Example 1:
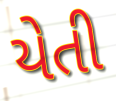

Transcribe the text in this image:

યેતી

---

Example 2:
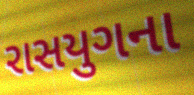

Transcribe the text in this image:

રાસયુગના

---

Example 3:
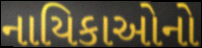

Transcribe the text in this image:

નાયિકાઓનો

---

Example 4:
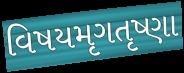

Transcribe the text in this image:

વિષયમૃગતૃષ્ણા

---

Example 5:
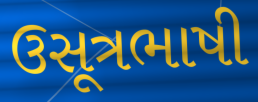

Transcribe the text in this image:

ઉસૂત્રભાષી